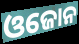
ଓଜୋନ